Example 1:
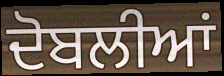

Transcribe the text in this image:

ਦੋਬਲੀਆਂ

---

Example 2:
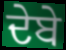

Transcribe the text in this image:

ਦੇਬੇ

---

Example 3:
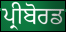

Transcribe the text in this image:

ਪ੍ਰੀਬੋਰਡ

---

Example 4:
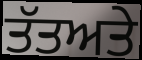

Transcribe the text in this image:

ਤੱਤਅਤੇ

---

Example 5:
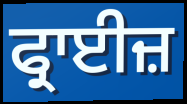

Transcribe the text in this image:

ਫ੍ਰਾਈਜ਼